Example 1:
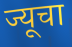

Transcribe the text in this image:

ज्यूचा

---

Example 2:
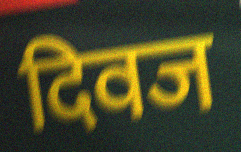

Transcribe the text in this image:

दिवज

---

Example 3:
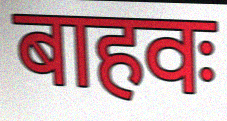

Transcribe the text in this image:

बाहवः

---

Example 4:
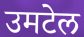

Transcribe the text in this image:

उमटेल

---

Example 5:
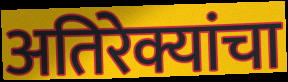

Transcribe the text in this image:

अतिरेक्यांचा